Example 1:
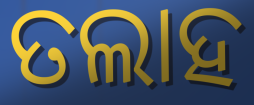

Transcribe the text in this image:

ତଲାହ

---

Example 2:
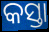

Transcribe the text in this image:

କସ୍ତା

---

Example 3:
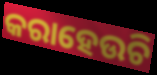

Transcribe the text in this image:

କରାହେଉଚି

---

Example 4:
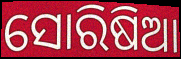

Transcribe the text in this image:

ସୋରିଷିଆ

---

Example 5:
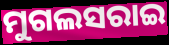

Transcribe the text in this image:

ମୁଗଲସରାଇ